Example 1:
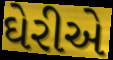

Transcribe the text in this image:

ઘેરીએ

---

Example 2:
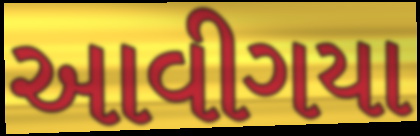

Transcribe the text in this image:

આવીગયા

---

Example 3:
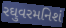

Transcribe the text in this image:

રઘુવરમનિશં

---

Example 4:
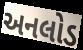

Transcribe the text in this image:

અનલોડ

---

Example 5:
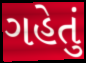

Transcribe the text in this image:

ગહેતું